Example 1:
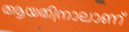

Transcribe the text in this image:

ആയതിനാലാണ്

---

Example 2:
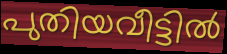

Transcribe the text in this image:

പുതിയവീട്ടിൽ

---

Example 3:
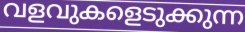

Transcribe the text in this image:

വളവുകളെടുക്കുന്ന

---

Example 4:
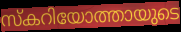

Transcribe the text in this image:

സ്കറിയോത്തായുടെ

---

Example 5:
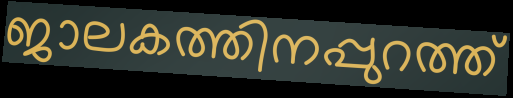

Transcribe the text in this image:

ജാലകത്തിനപ്പുറത്ത്